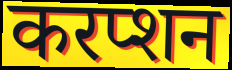
करप्शन